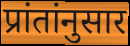
प्रांतांनुसार